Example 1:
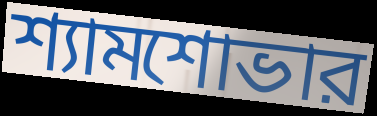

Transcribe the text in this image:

শ্যামশোভার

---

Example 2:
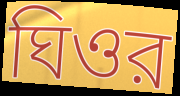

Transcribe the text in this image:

ঘিওর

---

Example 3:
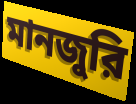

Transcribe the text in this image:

মানজুরি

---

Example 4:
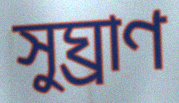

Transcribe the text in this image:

সুঘ্রাণ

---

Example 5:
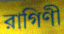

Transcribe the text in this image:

রাগিণী